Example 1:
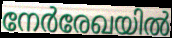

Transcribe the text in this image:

നേർരേഖയിൽ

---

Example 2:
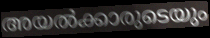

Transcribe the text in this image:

അയൽക്കാരുടെയും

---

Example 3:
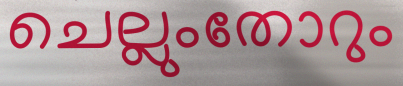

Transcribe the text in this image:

ചെല്ലുംതോറും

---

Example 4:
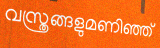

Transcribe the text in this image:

വസ്ത്രങ്ങളുമണിഞ്ഞ്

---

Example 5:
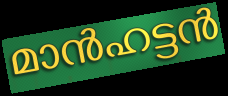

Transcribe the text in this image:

മാൻഹട്ടൻ